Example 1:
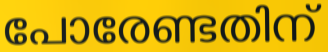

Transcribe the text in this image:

പോരേണ്ടതിന്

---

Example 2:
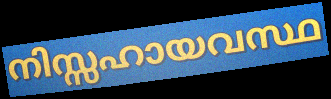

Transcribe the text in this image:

നിസ്സഹായവസ്ഥ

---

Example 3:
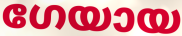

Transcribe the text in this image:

ഗേയായ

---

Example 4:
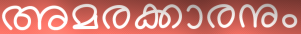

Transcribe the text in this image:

അമരക്കാരനും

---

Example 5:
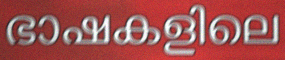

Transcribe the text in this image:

ഭാഷകളിലെ